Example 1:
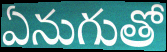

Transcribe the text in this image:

ఏనుగుతో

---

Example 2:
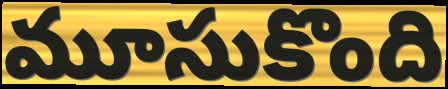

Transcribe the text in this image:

మూసుకొంది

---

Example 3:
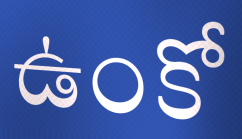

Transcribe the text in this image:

ఉంకో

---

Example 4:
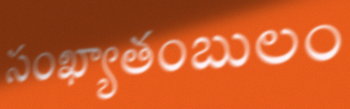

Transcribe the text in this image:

సంఖ్యాతంబులం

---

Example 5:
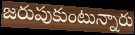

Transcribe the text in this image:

జరుపుకుంటున్నారు